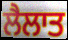
ਲੈਲਾਤ